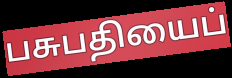
பசுபதியைப்